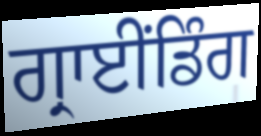
ਗ੍ਰਾਈਂਡਿੰਗ